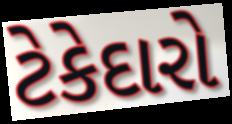
ટેકેદારો